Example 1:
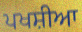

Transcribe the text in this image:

ਪਖਸ਼ੀਆ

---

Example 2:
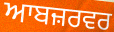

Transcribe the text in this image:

ਆਬਜ਼ਰਵਰ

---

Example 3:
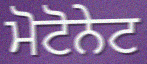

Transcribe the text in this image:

ਮੋਟੋਨੇਟ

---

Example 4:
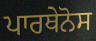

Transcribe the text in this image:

ਪਾਰਥੇਨੋਸ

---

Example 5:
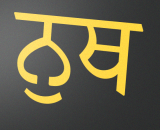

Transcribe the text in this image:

ਨੁਥ